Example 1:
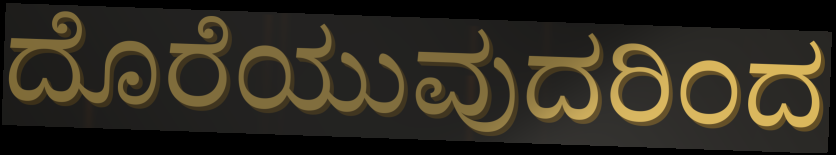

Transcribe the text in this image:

ದೊರೆಯುವುದರಿಂದ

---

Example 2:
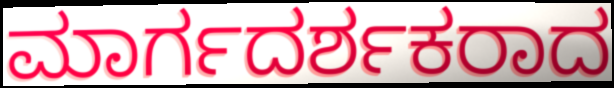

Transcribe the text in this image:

ಮಾರ್ಗದರ್ಶಕರಾದ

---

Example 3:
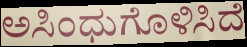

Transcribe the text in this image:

ಅಸಿಂಧುಗೊಳಿಸಿದೆ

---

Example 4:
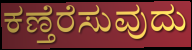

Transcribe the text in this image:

ಕಣ್ತೆರೆಸುವುದು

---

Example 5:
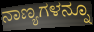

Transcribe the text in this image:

ನಾಣ್ಯಗಳನ್ನೂ